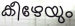
കീഴേയും